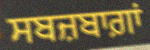
ਸਬਜ਼ਬਾਗ਼ਾਂ